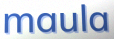
maula